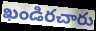
ఖండిరచారు